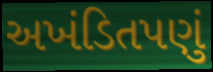
અખંડિતપણું